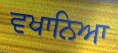
ਵਖਾਨਿਆ